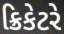
ક્રિકેટરે